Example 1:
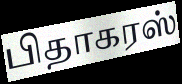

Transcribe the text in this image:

பிதாகரஸ்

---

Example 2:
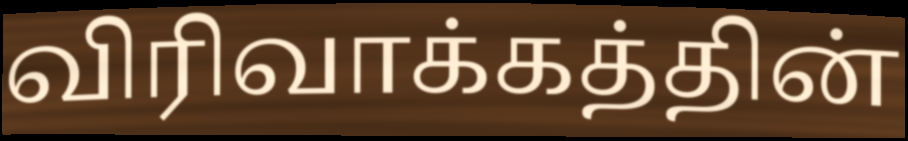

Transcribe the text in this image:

விரிவாக்கத்தின்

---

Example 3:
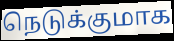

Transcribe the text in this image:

நெடுக்குமாக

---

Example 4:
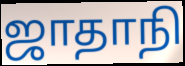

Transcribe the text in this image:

ஜாதாநி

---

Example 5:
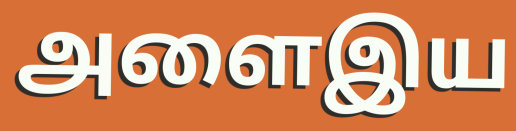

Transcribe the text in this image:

அளைஇய